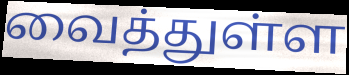
வைத்துள்ள